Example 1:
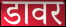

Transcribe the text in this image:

डावर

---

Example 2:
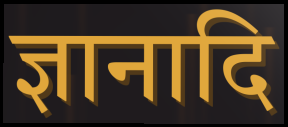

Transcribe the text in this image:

ज्ञानादि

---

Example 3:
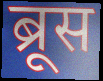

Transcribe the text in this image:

ब्रूस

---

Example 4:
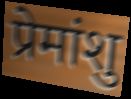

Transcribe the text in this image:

प्रेमांशु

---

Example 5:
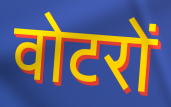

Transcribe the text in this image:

वोटरों